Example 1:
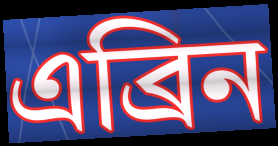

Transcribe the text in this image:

এব্ৰিন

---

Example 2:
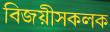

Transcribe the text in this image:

বিজয়ীসকলক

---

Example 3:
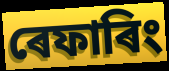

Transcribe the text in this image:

ৰেফাৰিং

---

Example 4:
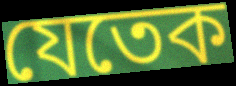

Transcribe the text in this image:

যেতেক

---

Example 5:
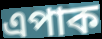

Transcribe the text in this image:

এপাক